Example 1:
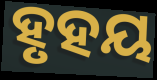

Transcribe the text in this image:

ହୃହୟ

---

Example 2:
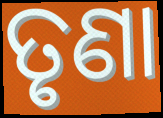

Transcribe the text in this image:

ତୃଣା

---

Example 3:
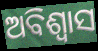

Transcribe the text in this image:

ଅବିଶ୍ବାସ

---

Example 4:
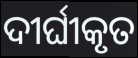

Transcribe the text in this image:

ଦୀର୍ଘୀକୃତ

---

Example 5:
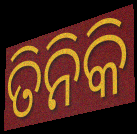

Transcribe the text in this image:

ତିନିକି